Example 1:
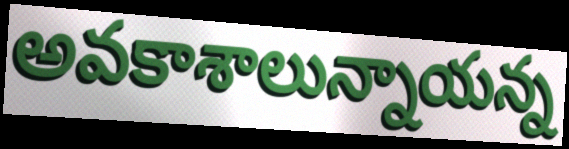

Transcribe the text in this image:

అవకాశాలున్నాయన్న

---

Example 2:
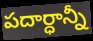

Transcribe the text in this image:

పదార్ధాన్నీ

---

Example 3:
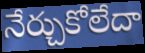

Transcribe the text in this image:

నేర్చుకోలేదా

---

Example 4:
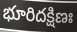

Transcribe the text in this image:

భూరిదక్షిణః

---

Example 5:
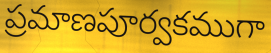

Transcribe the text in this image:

ప్రమాణపూర్వకముగా